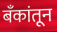
बँकांतून